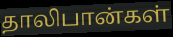
தாலிபான்கள்